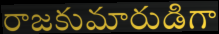
రాజకుమారుడిగా